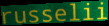
russelii